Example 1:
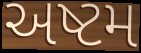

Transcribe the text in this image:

અષ્ટમ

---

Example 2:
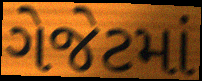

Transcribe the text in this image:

ગેજેટમાં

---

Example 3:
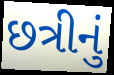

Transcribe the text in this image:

છત્રીનું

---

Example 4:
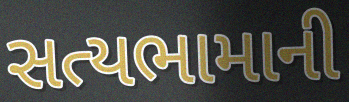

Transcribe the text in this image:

સત્યભામાની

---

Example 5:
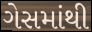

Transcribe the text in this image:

ગેસમાંથી